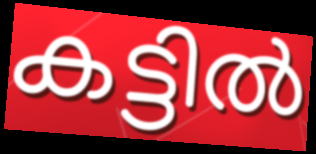
കട്ടിൽ